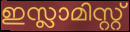
ഇസ്ലാമിസ്റ്റ്